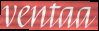
ventaa